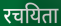
रचयिता